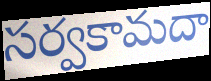
సర్వకామదా